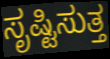
ಸೃಷ್ಟಿಸುತ್ತ